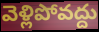
వెళ్లిపోవద్దు